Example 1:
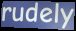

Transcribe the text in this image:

rudely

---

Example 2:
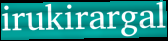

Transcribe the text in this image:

irukirargal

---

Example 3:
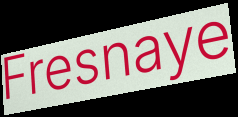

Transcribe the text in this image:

Fresnaye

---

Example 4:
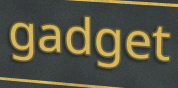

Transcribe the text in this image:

gadget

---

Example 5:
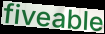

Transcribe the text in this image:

fiveable